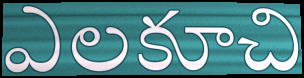
ఎలకూచి